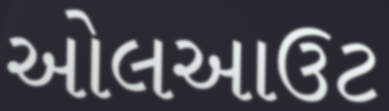
ઓલઆઉટ